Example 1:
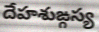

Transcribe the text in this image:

దేహశుఙ్గస్య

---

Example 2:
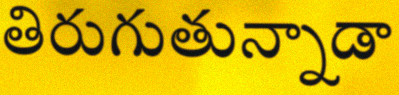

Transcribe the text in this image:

తిరుగుతున్నాడా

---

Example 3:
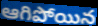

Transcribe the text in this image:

ఆగిపోయిన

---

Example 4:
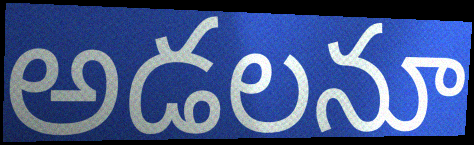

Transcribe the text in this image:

అడలనూ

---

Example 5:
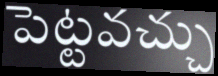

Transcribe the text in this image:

పెట్టవచ్చు